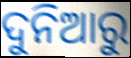
ଦୁନିଆରୁ